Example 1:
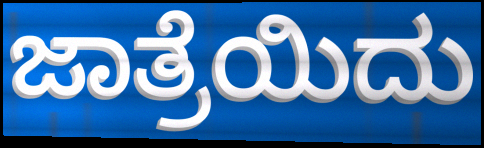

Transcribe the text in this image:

ಜಾತ್ರೆಯಿದು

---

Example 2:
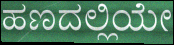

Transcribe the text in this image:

ಹಣದಲ್ಲಿಯೇ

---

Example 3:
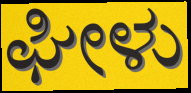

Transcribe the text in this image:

ಘೀಳು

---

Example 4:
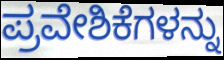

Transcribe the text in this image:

ಪ್ರವೇಶಿಕೆಗಳನ್ನು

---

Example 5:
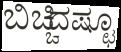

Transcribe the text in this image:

ಬಿಚ್ಚಿದಷ್ಟೂ